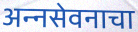
अन्नसेवनाचा